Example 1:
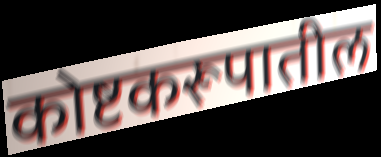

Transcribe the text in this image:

कोष्टकरूपातील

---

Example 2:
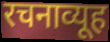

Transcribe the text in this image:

रचनाव्यूह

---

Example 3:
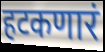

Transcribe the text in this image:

हटकणारं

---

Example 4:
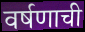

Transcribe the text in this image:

वर्षणाची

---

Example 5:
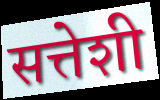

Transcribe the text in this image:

सत्तेशी